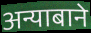
अन्याबाने